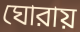
ঘোরায়